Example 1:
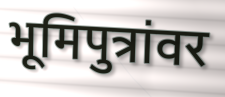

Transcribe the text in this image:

भूमिपुत्रांवर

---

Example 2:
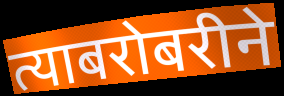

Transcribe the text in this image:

त्याबरोबरीने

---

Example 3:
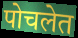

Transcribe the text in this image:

पोचलेत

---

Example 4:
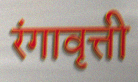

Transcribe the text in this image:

रंगावृत्ती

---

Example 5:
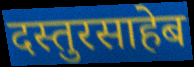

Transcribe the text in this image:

दस्तुरसाहेब